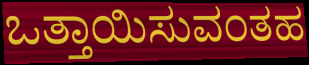
ಒತ್ತಾಯಿಸುವಂತಹ